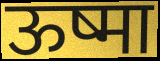
ऊष्‍मा